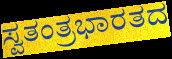
ಸ್ವತಂತ್ರಭಾರತದ